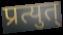
प्रत्युत्